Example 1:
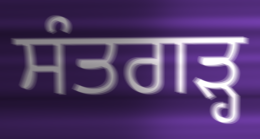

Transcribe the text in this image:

ਸੰਤਗੜ੍ਹ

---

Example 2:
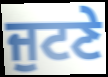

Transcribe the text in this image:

ਜੁਟਣੇ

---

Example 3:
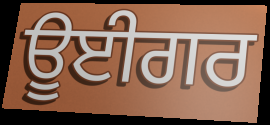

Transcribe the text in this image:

ਊਈਗਰ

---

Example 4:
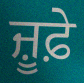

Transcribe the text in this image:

ਜ਼ੂਫ਼ੇ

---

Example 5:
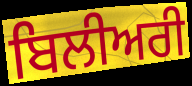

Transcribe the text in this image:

ਬਿਲੀਅਰੀ